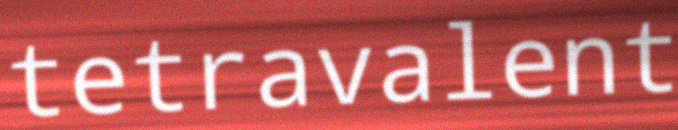
tetravalent